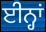
ਈਨ੍ਹਾਂ